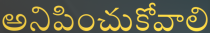
అనిపించుకోవాలి